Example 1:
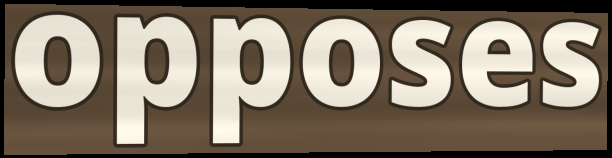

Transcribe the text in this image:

opposes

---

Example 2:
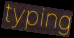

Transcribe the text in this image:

typing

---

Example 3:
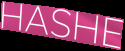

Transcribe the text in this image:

HASHE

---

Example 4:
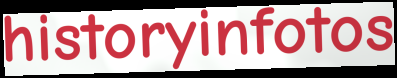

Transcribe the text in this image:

historyinfotos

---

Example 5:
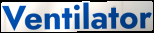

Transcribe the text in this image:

Ventilator